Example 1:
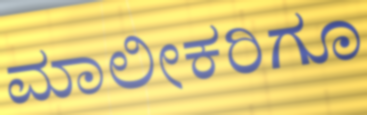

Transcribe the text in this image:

ಮಾಲೀಕರಿಗೂ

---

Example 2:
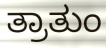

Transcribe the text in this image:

ತ್ರಾತುಂ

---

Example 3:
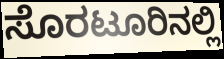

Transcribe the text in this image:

ಸೊರಟೂರಿನಲ್ಲಿ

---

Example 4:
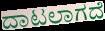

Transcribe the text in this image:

ದಾಟಲಾಗದೆ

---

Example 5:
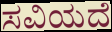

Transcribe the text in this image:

ಸವಿಯದೆ